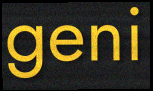
geni